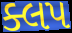
ક્લપ